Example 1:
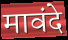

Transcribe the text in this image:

मावंदे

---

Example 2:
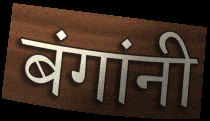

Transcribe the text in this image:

बंगांनी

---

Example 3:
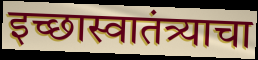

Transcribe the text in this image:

इच्छास्वातंत्र्याचा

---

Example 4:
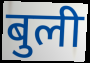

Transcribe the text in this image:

बुली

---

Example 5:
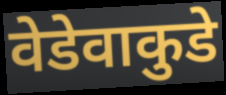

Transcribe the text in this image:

वेडेवाकुडे